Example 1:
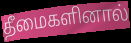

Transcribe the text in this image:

தீமைகளினால்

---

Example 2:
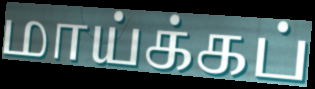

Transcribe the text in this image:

மாய்க்கப்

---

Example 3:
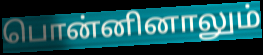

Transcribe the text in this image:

பொன்னினாலும்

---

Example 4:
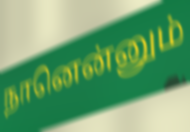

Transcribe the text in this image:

நானென்னும்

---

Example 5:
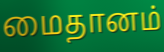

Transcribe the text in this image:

மைதானம்